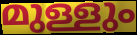
മുള്ളും